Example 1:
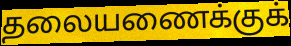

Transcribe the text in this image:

தலையணைக்குக்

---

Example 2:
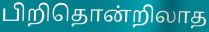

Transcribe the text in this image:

பிறிதொன்றிலாத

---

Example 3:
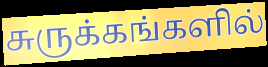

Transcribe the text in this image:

சுருக்கங்களில்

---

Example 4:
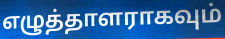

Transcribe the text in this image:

எழுத்தாளராகவும்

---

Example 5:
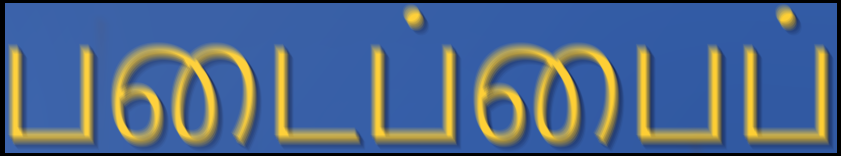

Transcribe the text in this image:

படைப்பைப்